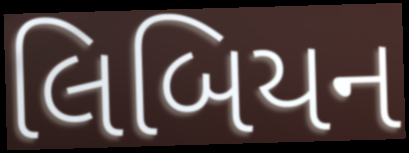
લિબિયન